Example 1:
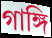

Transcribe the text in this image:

গাঙ্গি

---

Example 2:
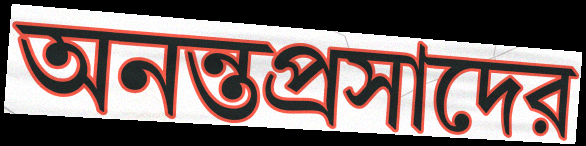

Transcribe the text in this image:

অনন্তপ্রসাদের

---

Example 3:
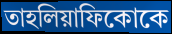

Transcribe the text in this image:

তাহলিয়াফিকোকে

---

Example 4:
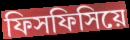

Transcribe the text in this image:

ফিসফিসিয়ে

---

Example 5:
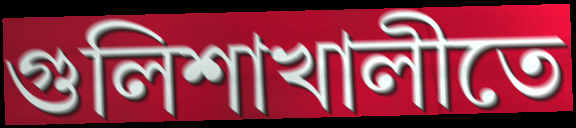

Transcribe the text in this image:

গুলিশাখালীতে